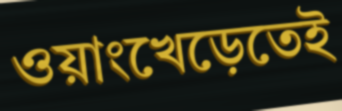
ওয়াংখেড়েতেই